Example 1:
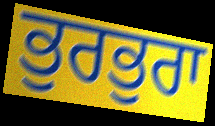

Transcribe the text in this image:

ਭੁਰਭੁਰਾ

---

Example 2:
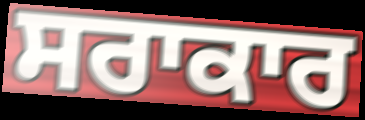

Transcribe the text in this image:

ਸਰਾਕਾਰ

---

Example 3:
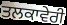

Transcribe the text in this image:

ਤਲਕਾਵੇਰੀ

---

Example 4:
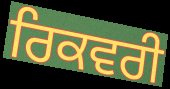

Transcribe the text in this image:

ਰਿਕਵਰੀ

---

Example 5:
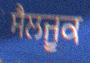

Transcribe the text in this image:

ਸੈਲਜੂਕ